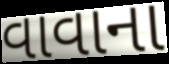
વાવાના